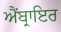
ਐਂਬ੍ਰਾਇਰ